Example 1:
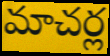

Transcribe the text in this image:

మాచర్ల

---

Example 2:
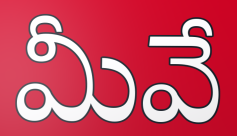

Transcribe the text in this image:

మీవే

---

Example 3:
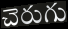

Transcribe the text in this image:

చెరుగు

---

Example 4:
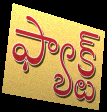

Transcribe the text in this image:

ఫ్యాక్ట్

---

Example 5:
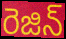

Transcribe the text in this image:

రెజిన్